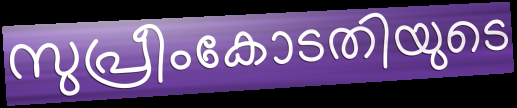
സുപ്രീംകോടതിയുടെ